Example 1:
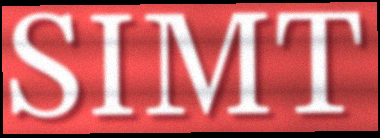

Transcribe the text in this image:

SIMT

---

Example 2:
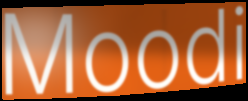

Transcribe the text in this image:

Moodi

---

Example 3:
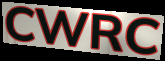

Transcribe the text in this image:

CWRC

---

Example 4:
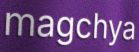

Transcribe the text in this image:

magchya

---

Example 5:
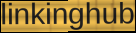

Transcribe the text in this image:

linkinghub